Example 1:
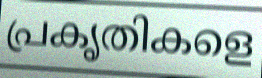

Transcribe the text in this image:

പ്രകൃതികളെ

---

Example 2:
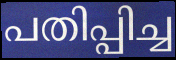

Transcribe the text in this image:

പതിപ്പിച്ച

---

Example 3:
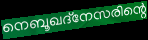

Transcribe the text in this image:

നെബൂഖദ്നേസരിന്റെ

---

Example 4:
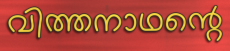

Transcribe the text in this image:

വിത്തനാഥന്റെ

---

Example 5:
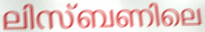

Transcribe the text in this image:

ലിസ്ബണിലെ